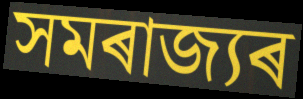
সমৰাজ্যৰ